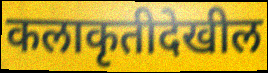
कलाकृतीदेखील